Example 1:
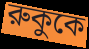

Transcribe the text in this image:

রুকুকে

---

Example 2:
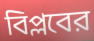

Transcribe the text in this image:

বিপ্লবের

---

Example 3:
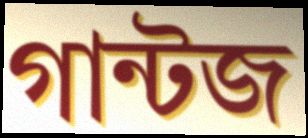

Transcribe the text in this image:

গান্টজ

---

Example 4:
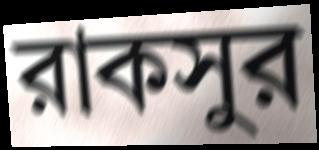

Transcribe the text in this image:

রাকসুর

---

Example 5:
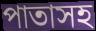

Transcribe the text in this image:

পাতাসহ